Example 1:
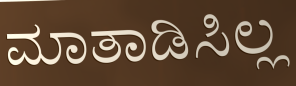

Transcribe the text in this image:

ಮಾತಾಡಿಸಿಲ್ಲ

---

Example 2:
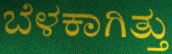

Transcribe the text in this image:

ಬೆಳಕಾಗಿತ್ತು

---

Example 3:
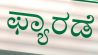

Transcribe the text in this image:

ಫ್ಯಾರಡೆ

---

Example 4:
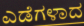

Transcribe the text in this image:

ಎಡೆಗಳಾದ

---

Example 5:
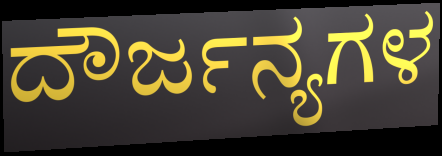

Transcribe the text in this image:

ದೌರ್ಜನ್ಯಗಳ